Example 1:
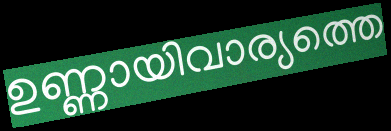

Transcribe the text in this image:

ഉണ്ണായിവാര്യത്തെ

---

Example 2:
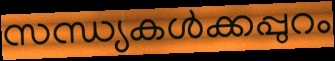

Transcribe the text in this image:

സന്ധ്യകൾക്കപ്പുറം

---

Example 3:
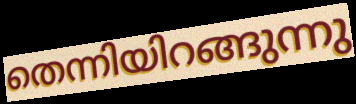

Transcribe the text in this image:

തെന്നിയിറങ്ങുന്നു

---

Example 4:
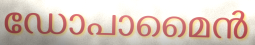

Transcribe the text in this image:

ഡോപാമൈൻ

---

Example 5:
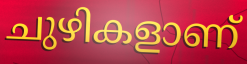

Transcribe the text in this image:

ചുഴികളാണ്